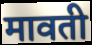
मावती